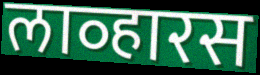
लाव्हारस